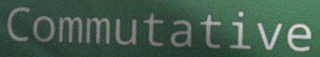
Commutative